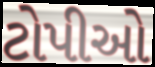
ટોપીઓ